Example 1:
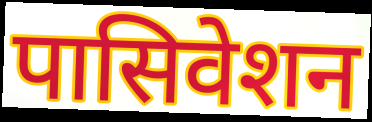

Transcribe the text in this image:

पासिवेशन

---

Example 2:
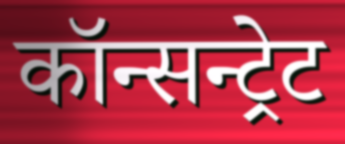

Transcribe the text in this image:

कॉन्सन्ट्रेट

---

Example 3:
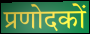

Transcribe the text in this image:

प्रणोदकों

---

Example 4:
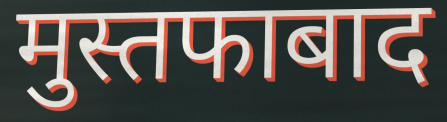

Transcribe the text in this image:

मुस्तफाबाद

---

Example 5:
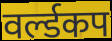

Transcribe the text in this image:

वर्ल्‍डकप